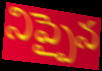
నిప్పైన